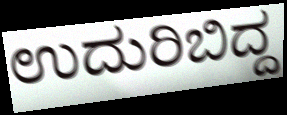
ಉದುರಿಬಿದ್ದ